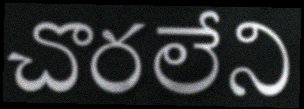
చొరలేని